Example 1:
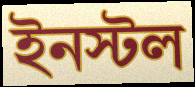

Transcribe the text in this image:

ইনস্টল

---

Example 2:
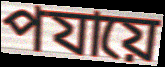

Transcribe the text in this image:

পযায়ে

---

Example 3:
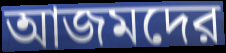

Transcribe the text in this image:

আজমদের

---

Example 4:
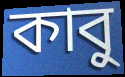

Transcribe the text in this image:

কাবু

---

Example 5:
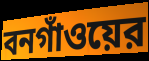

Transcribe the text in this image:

বনগাঁওয়ের